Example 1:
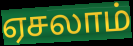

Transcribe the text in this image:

ஏசலாம்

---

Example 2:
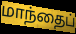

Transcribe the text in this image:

மாந்தைப்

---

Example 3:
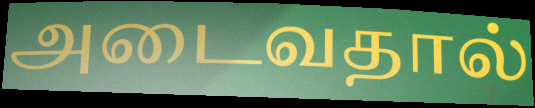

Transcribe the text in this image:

அடைவதால்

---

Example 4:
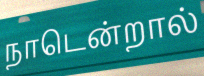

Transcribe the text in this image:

நாடென்றால்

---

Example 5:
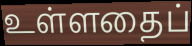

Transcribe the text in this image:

உள்ளதைப்